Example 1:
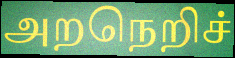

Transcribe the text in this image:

அறநெறிச்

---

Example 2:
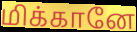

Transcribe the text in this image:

மிக்கானே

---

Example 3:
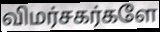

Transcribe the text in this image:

விமர்சகர்களே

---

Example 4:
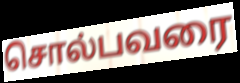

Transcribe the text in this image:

சொல்பவரை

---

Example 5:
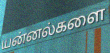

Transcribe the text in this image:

யன்னல்களை